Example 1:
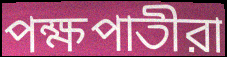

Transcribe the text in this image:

পক্ষপাতীরা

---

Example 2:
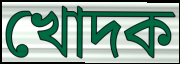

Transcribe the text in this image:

খোদক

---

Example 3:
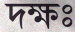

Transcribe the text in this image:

দক্ষঃ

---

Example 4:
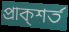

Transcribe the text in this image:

প্রাক্‌শর্ত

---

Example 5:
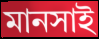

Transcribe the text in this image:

মানসাই